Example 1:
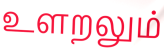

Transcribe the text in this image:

உளறலும்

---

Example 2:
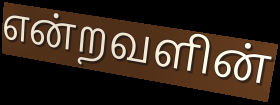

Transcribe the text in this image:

என்றவளின்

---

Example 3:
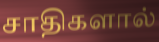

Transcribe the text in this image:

சாதிகளால்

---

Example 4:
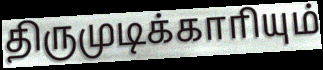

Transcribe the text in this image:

திருமுடிக்காரியும்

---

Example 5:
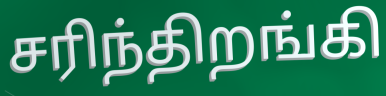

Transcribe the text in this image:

சரிந்திறங்கி